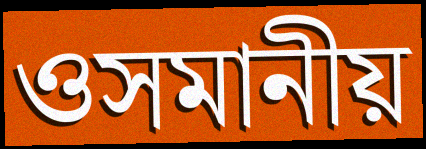
ওসমানীয়